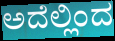
ಅದೆಲ್ಲಿಂದ